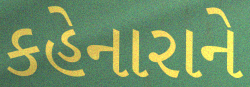
કહેનારાને